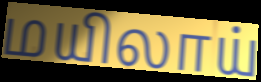
மயிலாய்